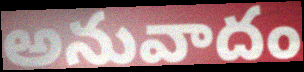
అనువాదం